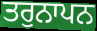
ਤਰੁਨਾਪਨ